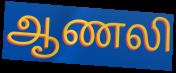
ஆணலி